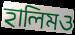
হালিমও